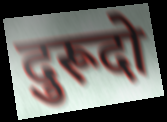
दुरूदो